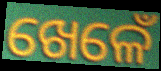
ଖେଳେଁ